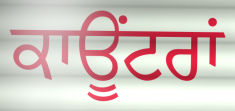
ਕਾਊਂਟਰਾਂ